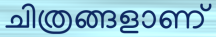
ചിത്രങ്ങളാണ്